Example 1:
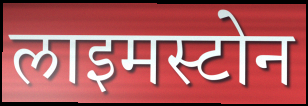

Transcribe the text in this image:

लाइमस्टोन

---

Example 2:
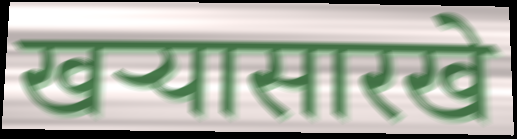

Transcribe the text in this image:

खऱ्यासारखे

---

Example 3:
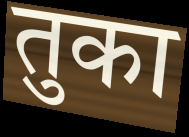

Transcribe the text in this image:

तुका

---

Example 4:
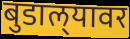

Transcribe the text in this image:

बुडाल्यावर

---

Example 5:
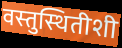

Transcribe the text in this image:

वस्तुस्थितीशी